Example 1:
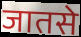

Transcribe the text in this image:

जातसे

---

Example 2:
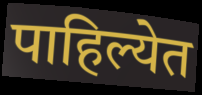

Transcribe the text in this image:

पाहिल्येत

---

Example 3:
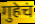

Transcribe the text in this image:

गुहेचं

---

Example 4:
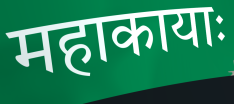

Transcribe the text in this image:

महाकायाः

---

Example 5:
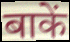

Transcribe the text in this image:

बाकें